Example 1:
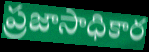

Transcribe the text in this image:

ప్రజాసాధికార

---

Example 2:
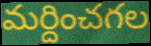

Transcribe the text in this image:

మర్దించగల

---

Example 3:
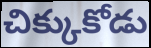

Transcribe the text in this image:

చిక్కుకోడు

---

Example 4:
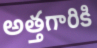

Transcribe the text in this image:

అత్తగారికి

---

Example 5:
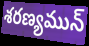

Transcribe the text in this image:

శరణ్యమున్